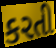
કરતી